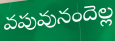
వపువునందెల్ల